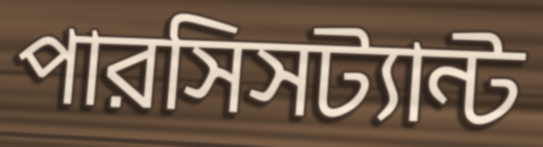
পারসিসট্যান্ট